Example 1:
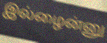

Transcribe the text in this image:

இல்ழைன்னு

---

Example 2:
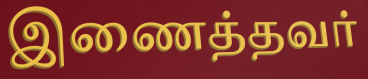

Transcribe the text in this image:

இணைத்தவர்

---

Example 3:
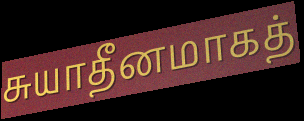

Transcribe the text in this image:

சுயாதீனமாகத்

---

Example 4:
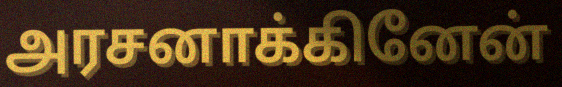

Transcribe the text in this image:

அரசனாக்கினேன்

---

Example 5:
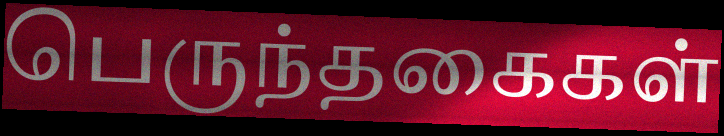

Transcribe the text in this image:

பெருந்தகைகள்